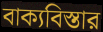
বাক্যবিস্তার